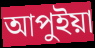
আপুইয়া